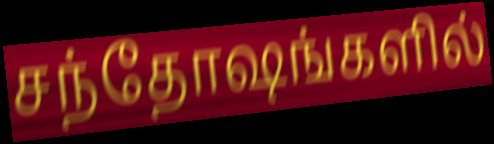
சந்தோஷங்களில்